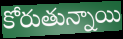
కోరుతున్నాయి